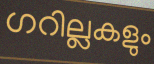
ഗറില്ലകളും